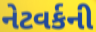
નેટવર્કની